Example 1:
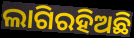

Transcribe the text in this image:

ଲାଗିରହିଅଛି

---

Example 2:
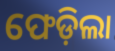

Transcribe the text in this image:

ଫେଡ଼ିଲା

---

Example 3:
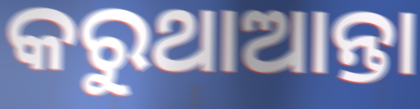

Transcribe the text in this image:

କରୁଥାଆନ୍ତା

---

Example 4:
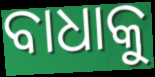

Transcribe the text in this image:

ବାଧାକୁ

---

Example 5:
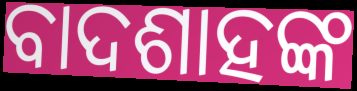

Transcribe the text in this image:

ବାଦଶାହଙ୍କ